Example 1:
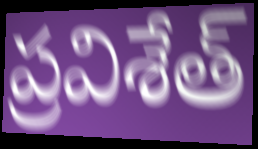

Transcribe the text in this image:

ప్రవిశేత్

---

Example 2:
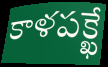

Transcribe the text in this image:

కాళపక్ఖే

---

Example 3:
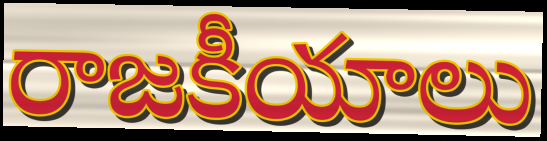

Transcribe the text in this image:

రాజకీయాలు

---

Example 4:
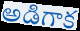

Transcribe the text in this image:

అడిగాక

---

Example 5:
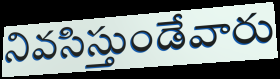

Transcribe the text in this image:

నివసిస్తుండేవారు